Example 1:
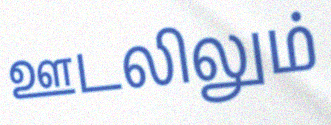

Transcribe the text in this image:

ஊடலிலும்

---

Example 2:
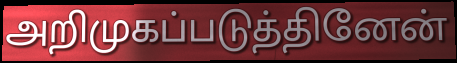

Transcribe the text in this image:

அறிமுகப்படுத்தினேன்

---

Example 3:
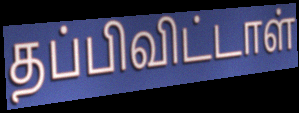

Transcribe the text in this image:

தப்பிவிட்டாள்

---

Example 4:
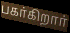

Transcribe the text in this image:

பகர்கிறார்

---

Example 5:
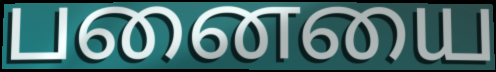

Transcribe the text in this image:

பனையை